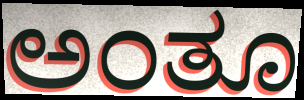
ಅಂತೂ